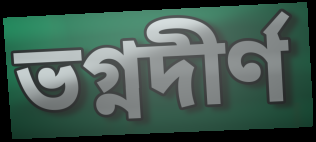
ভগ্নদীর্ণ